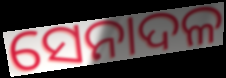
ସେନାଦଳ